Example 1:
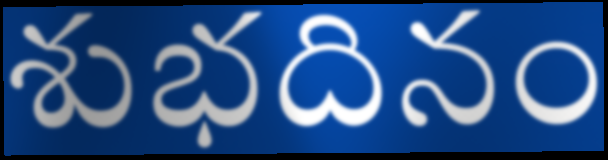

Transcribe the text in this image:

శుభదినం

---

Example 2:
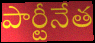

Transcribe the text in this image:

పార్టీనేత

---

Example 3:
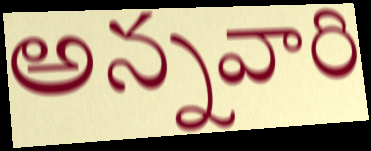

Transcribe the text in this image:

అన్నవారి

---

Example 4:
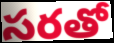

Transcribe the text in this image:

సరతో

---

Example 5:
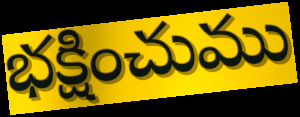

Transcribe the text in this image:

భక్షించుము